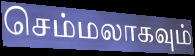
செம்மலாகவும்